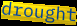
drought